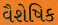
વૈશેષિક